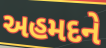
અહમદને